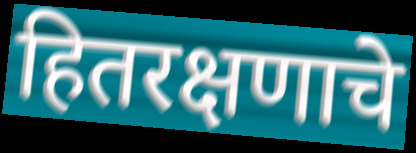
हितरक्षणाचे